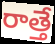
రాత్తే